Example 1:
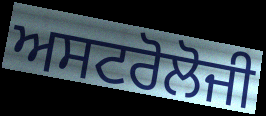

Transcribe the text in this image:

ਅਸਟਰੋਲੋਜੀ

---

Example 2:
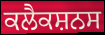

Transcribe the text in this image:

ਕਲੈਕਸ਼ਨਸ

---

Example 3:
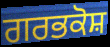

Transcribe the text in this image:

ਗਰਭਕੋਸ਼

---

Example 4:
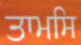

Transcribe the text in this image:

ਤਾਮਸਿ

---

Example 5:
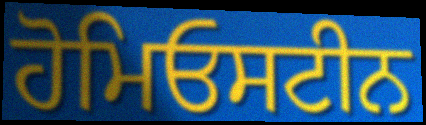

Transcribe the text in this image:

ਹੋਮਿਓਸਟੀਨ